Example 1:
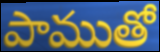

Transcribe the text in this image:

పాముతో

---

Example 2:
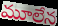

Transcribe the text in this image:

మూలేన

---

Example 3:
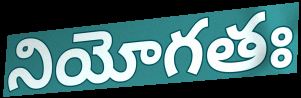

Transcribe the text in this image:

నియోగతః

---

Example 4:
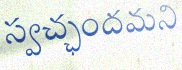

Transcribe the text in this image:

స్వచ్ఛందమని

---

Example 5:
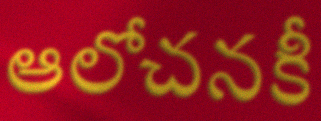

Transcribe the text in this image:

ఆలోచనకీ